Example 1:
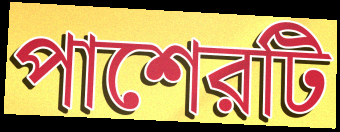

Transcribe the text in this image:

পাশেরটি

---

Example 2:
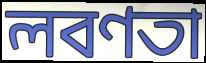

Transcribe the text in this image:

লবণতা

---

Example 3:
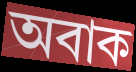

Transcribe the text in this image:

অবাক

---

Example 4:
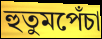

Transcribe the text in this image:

হুতুমপেঁচা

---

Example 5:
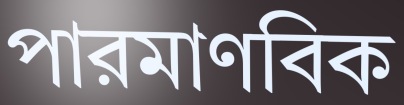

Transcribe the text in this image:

পারমাণবিক